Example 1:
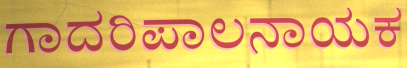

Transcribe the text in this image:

ಗಾದರಿಪಾಲನಾಯಕ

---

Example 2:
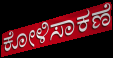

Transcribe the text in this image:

ಕೋಳಿಸಾಕಣೆ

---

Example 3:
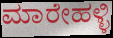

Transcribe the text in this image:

ಮಾರೇಹಳ್ಳಿ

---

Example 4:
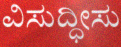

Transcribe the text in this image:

ವಿಸುದ್ಧೀಸು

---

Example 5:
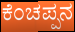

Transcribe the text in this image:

ಕೆಂಚಪ್ಪನ